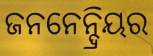
ଜନନେନ୍ଦ୍ରିୟର